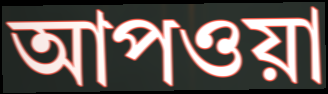
আপওয়া